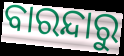
ବାରନ୍ଦାରୁ